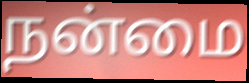
நன்மை